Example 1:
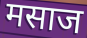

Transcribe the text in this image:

मसाज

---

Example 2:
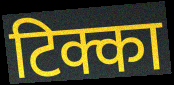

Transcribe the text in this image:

टिक्का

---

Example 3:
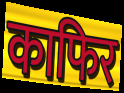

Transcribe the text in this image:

काफिर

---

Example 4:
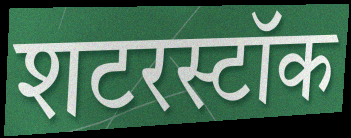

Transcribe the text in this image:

शटरस्टॉक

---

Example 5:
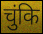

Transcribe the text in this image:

चुंकि